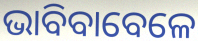
ଭାବିବାବେଳେ